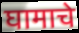
घामाचे